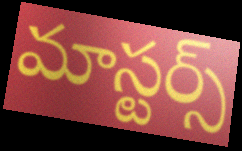
మాస్టర్స్